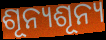
ଶୂନ୍ୟଶୂନ୍ୟ